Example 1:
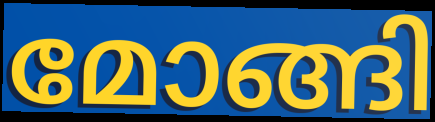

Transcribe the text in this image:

മോങ്ങി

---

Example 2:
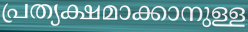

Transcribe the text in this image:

പ്രത്യക്ഷമാക്കാനുള്ള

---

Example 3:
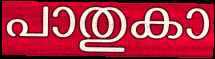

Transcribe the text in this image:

പാതുകാ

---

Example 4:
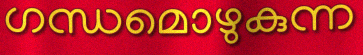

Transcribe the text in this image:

ഗന്ധമൊഴുകുന്ന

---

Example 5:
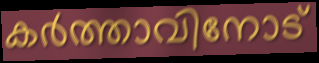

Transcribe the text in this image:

കർത്താവിനോട്